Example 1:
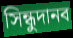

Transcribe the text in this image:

সিন্ধুদানব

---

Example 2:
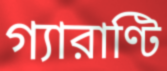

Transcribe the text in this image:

গ্যারাণ্টি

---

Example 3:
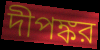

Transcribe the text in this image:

দীপঙ্কর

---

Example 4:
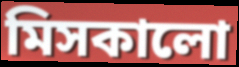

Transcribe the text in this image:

মিসকালো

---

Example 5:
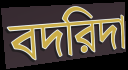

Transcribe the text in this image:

বদরিদা